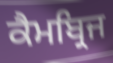
ਕੈਮਬ੍ਰਿਜ